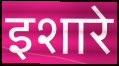
इशारे